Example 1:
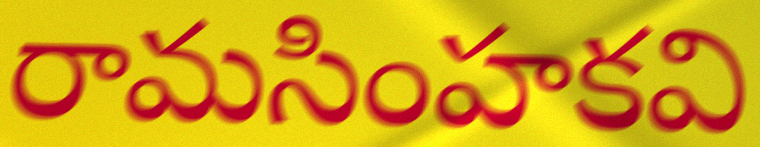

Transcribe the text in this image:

రామసింహకవి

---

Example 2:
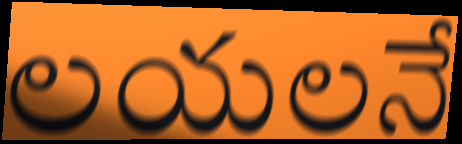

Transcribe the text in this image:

లయలనే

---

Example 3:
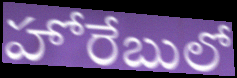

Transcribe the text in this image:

హోరేబులో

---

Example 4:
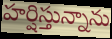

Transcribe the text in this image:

హర్షిస్తున్నాను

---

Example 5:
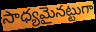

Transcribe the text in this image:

సాధ్యమైనట్టుగా